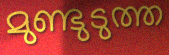
മുണ്ടുടുത്ത